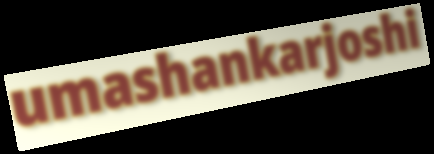
umashankarjoshi